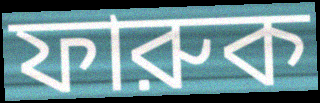
ফারুক